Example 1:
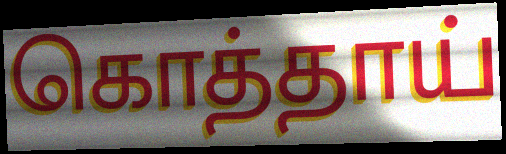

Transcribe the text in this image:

கொத்தாய்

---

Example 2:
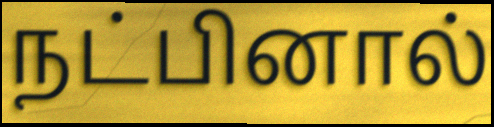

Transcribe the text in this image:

நட்பினால்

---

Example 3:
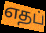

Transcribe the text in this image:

எதப்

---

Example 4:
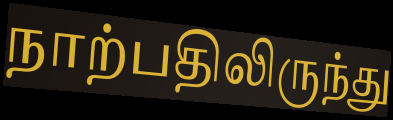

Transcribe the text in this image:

நாற்பதிலிருந்து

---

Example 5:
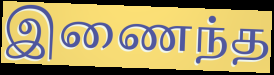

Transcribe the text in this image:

இணைந்த